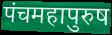
पंचमहापुरुष